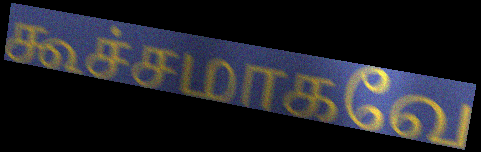
கூச்சமாகவே